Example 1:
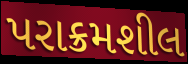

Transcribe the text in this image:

પરાક્રમશીલ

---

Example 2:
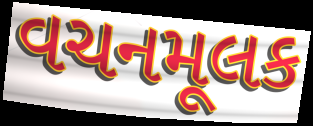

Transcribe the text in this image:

વચનમૂલક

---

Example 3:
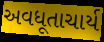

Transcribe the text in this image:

અવધૂતાચાર્ય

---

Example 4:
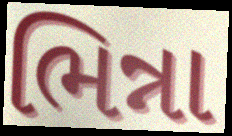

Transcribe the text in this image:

ભિન્ના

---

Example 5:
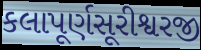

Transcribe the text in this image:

કલાપૂર્ણસૂરીશ્વરજી